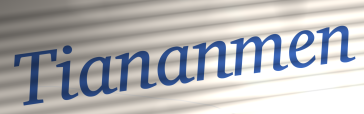
Tiananmen